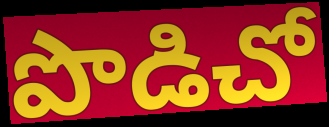
పొడిచో